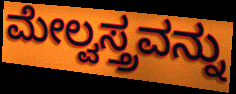
ಮೇಲ್ವಸ್ತ್ರವನ್ನು